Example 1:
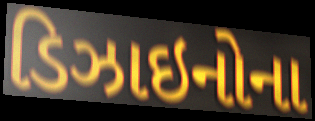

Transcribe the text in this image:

ડિઝાઇનોના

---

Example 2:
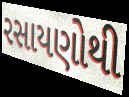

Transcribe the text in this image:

રસાયણોથી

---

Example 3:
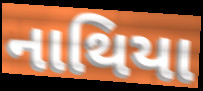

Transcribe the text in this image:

નાથિયા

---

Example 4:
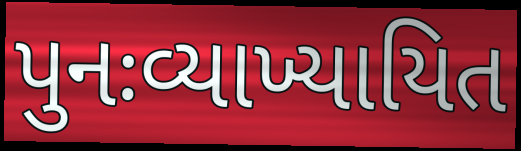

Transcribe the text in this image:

પુનઃવ્યાખ્યાયિત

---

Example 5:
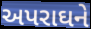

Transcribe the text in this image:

અપરાઘને